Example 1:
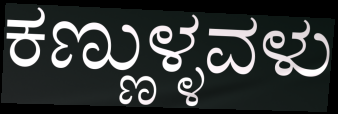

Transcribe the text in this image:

ಕಣ್ಣುಳ್ಳವಳು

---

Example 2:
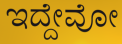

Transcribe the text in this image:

ಇದ್ದೇವೋ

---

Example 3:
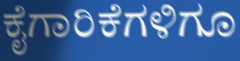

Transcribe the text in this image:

ಕೈಗಾರಿಕೆಗಳಿಗೂ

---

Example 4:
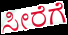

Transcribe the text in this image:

ಸೀರೆಗೆ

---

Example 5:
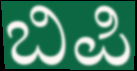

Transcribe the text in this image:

ಬಿಪಿ